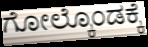
ಗೋಲ್ಕೊಂಡಕ್ಕೆ